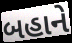
બહાને